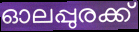
ഓലപ്പുരക്ക്